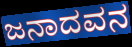
ಜನಾದವನ